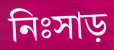
নিঃসাড়